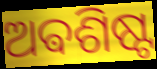
ଅଵଶିଷ୍ଟ